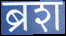
ब्रश